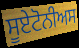
ਸੂਏਟੋਨੀਅਸ